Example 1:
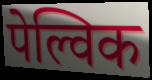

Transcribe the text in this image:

पेल्विक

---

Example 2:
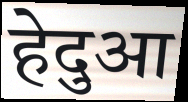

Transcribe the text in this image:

हेदुआ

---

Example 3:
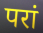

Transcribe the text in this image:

परां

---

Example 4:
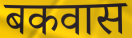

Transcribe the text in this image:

बकवास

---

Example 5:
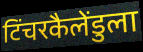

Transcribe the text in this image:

टिंचरकैलेंडुला